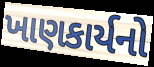
ખાણકાર્યનો